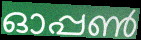
ഓപ്പൺ